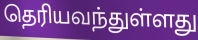
தெரியவந்துள்ளது